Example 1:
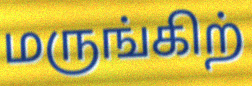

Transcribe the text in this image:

மருங்கிற்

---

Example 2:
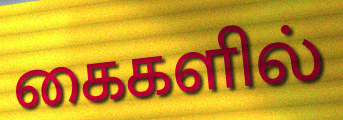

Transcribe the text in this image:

கைகளில்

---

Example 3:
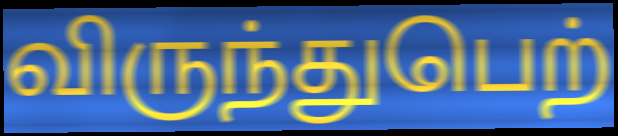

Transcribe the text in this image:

விருந்துபெற்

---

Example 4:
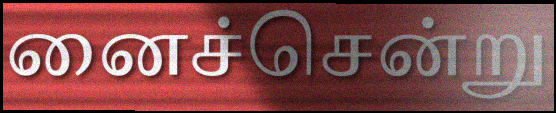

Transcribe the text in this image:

னைச்சென்று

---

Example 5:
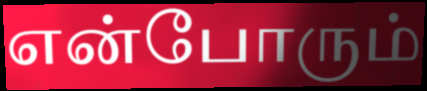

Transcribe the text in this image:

என்போரும்